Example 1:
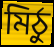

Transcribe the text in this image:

মিঠু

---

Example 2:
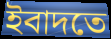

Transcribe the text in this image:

ইবাদতে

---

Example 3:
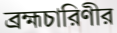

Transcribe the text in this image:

ব্রহ্মচারিণীর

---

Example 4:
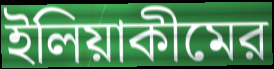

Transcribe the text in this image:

ইলিয়াকীমের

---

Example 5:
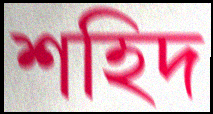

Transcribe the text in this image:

শহিদ